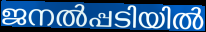
ജനൽപ്പടിയിൽ